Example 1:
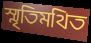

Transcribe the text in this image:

স্মৃতিমথিত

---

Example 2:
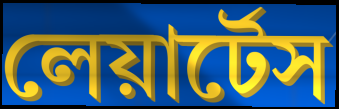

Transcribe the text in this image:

লেয়ার্টেস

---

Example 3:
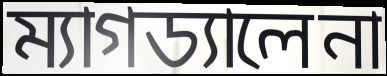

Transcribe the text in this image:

ম্যাগড্যালেনা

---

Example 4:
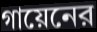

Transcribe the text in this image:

গায়েনের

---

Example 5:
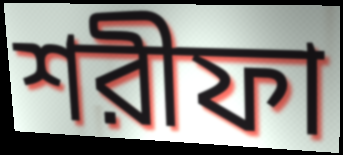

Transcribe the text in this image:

শরীফা